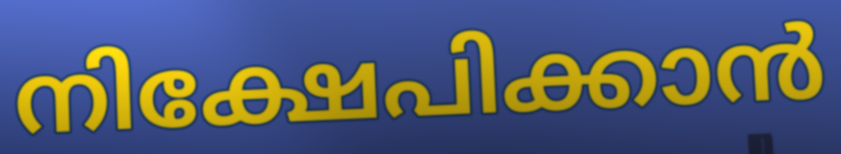
നിക്ഷേപിക്കാൻ